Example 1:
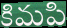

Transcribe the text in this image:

కిమపి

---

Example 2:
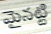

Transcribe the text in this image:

మైనట్టి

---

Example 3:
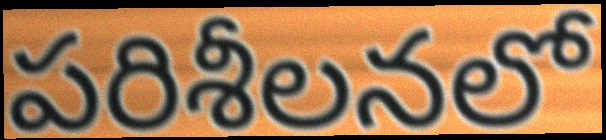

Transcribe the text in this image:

పరిశీలనలో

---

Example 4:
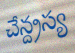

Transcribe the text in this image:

చేన్ద్రస్య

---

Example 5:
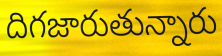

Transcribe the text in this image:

దిగజారుతున్నారు